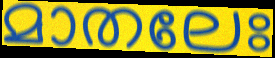
മാതലേഃ